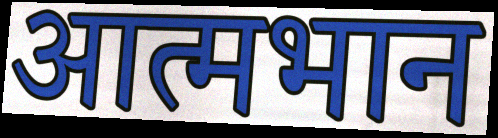
आत्मभान